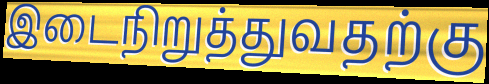
இடைநிறுத்துவதற்கு